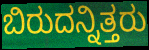
ಬಿರುದನ್ನಿತ್ತರು